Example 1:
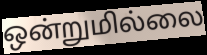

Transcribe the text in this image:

ஒன்றுமில்லை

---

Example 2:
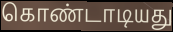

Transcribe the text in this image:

கொண்டாடியது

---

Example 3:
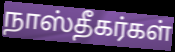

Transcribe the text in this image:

நாஸ்தீகர்கள்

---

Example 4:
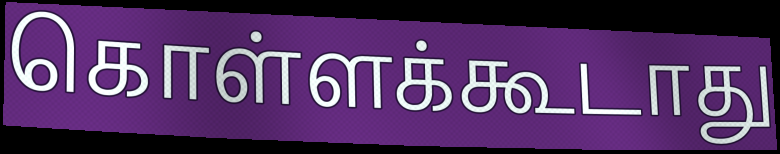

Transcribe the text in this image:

கொள்ளக்கூடாது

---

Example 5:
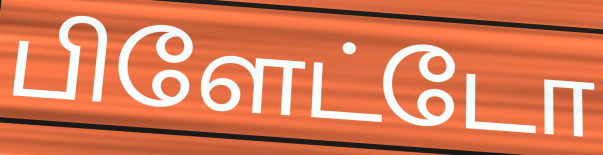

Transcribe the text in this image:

பிளேட்டோ